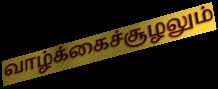
வாழ்க்கைச்சூழலும்